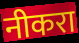
नीकरा